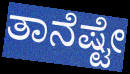
ತಾನೆಷ್ಟೇ